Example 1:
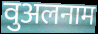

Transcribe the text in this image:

वुअलनाम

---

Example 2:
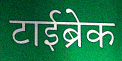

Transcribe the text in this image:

टाईब्रेक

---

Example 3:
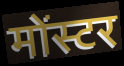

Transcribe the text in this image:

मोंस्टर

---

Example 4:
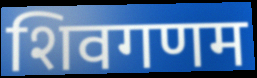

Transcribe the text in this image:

शिवगणम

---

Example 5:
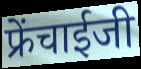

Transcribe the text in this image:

फ्रेंचाईजी